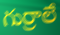
గుర్రాలే